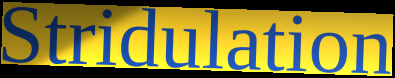
Stridulation